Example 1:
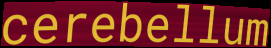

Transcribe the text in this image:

cerebellum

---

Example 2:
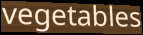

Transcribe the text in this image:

vegetables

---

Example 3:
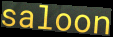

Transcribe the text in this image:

saloon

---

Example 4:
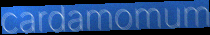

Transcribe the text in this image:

cardamomum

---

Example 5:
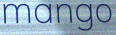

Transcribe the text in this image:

mango